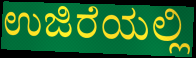
ಉಜಿರೆಯಲ್ಲಿ